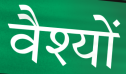
वैश्‍यों